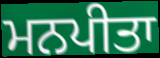
ਮਨਪੀਤਾ